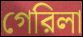
গেরিলা